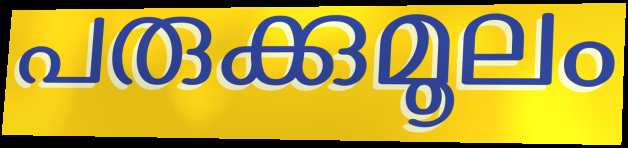
പരുക്കുമൂലം